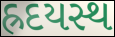
હ્રદયસ્થ